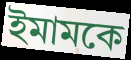
ইমামকে